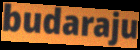
budaraju